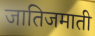
जातिजमाती